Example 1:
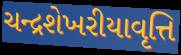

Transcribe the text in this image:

ચન્દ્રશેખરીયાવૃત્તિ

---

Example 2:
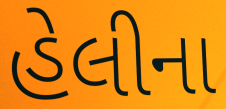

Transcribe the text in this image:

હેલીના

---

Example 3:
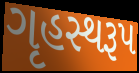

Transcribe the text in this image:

ગૃહસ્થરૂપ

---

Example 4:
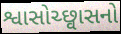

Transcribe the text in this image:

શ્વાસોચ્છ્વાસનો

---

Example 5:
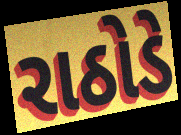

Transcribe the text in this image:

રાઠોડે